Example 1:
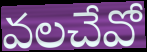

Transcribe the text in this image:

వలచేవో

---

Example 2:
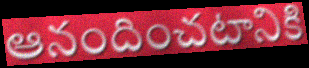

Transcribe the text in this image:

ఆనందించటానికి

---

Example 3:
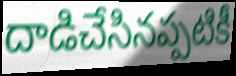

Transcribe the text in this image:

దాడిచేసినప్పటికీ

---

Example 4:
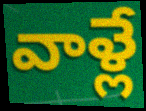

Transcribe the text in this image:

వాళ్లే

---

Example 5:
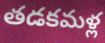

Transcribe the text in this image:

తడకమళ్ల